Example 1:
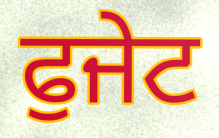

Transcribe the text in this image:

ਫੁਜੇਟ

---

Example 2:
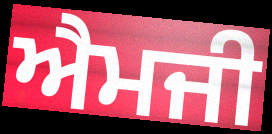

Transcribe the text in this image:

ਐਮਜੀ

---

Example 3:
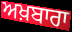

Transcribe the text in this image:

ਅਖ਼ਬਾਰਾ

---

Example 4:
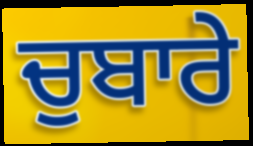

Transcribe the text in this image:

ਚੁਬਾਰੇ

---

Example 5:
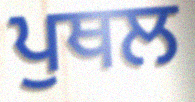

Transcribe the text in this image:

ਪੁਥਲ